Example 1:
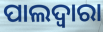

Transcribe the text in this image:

ପାଲଦ୍ୱାରା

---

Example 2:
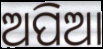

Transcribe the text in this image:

ଅପିଆ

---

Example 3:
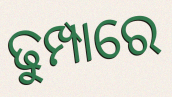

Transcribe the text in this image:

ଢୁମ୍ପାରେ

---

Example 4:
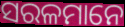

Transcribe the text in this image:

ସରଳମାନେ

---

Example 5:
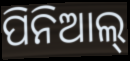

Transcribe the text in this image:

ପିନିଆଲ୍